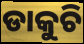
ଡାକୁଚି